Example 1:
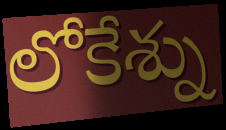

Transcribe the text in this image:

లోకేశ్ను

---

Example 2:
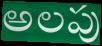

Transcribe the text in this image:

అలపు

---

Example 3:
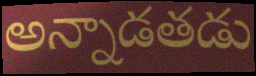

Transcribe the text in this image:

అన్నాడతడు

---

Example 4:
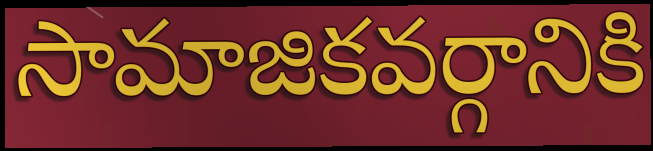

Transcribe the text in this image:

సామాజికవర్గానికి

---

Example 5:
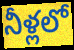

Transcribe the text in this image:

నీళ్లలో